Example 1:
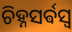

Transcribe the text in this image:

ଚିହ୍ନସର୍ଵସ୍ଵ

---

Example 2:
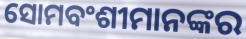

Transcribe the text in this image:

ସୋମବଂଶୀମାନଙ୍କର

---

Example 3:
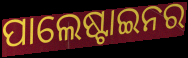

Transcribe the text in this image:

ପାଲେଷ୍ଟାଇନର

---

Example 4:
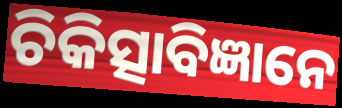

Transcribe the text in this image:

ଚିକିତ୍ସାବିଜ୍ଞାନେ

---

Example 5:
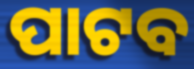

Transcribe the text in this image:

ପାଟବ